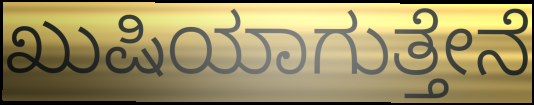
ಖುಷಿಯಾಗುತ್ತೇನೆ